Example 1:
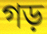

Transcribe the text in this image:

গড়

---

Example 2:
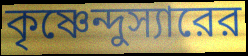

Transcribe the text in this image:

কৃষ্ণেন্দুস্যারের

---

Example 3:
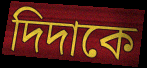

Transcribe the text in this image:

দিদাকে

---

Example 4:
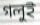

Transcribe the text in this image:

গলুই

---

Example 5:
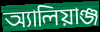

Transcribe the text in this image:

অ্যালিয়াঞ্জ